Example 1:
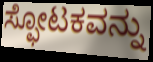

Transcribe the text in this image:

ಸ್ಫೋಟಕವನ್ನು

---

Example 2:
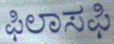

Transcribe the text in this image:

ಫಿಲಾಸಫಿ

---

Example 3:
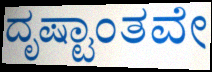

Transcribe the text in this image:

ದೃಷ್ಟಾಂತವೇ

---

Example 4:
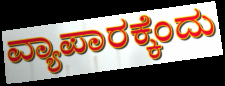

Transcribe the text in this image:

ವ್ಯಾಪಾರಕ್ಕೆಂದು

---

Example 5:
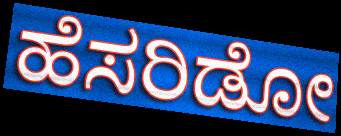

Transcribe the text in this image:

ಹೆಸರಿಡೋ